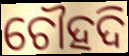
ଚୌହଦି